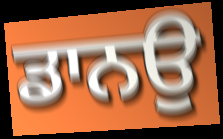
ਡਾਨਉ